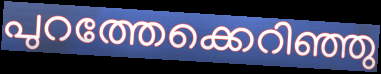
പുറത്തേക്കെറിഞ്ഞു